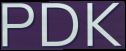
PDK